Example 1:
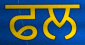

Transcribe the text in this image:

ਫਲ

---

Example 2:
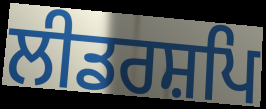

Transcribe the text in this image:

ਲੀਡਰਸ਼ਪਿ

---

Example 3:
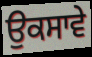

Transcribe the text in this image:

ਉਕਸਾਵੇ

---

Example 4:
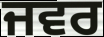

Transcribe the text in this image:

ਜਵਰ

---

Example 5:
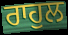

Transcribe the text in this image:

ਰਾਹੁਲ